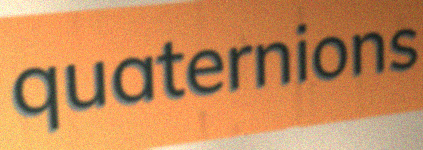
quaternions